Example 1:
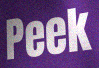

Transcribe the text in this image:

Peek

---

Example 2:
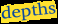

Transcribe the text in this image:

depths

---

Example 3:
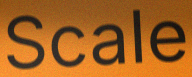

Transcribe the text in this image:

Scale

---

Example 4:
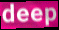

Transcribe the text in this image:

deep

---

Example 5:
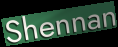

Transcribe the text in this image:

Shennan